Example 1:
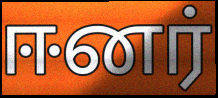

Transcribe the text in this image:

ஈனர்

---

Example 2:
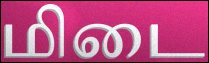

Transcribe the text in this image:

மிடை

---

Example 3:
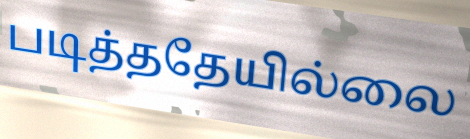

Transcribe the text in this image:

படித்ததேயில்லை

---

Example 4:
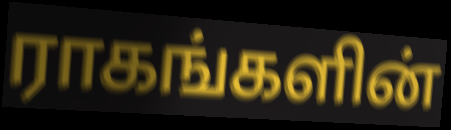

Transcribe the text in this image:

ராகங்களின்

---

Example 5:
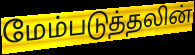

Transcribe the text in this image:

மேம்படுத்தலின்